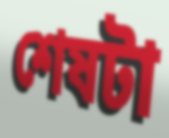
শেষটা